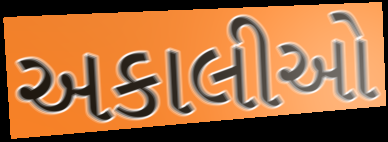
અકાલીઓ